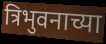
त्रिभुवनाच्या